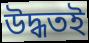
উদ্ধতই